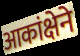
आकांक्षेने